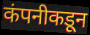
कंपनीकडून